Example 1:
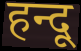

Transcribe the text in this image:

हन्दू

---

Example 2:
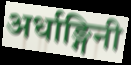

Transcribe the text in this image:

अर्धाङ्गिनी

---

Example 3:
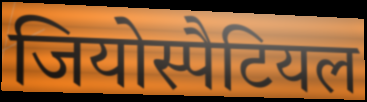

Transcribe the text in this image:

जियोस्पैटियल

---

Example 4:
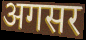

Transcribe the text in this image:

अगसर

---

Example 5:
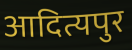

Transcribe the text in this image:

आदित्यपुर